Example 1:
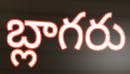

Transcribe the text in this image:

బ్లాగరు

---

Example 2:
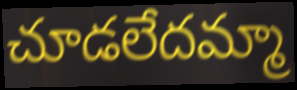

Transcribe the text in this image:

చూడలేదమ్మా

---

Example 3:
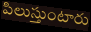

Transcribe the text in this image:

పిలుస్తుంటారు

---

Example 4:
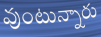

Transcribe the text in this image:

వుంటున్నారు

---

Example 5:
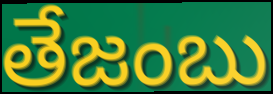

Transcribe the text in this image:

తేజంబు